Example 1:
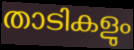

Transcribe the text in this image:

താടികളും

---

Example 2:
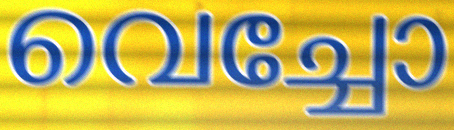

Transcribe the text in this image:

വെച്ചോ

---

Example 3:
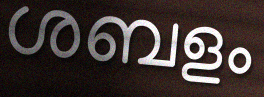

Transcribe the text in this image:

ശബളം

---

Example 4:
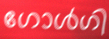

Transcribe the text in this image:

ഗോൾഗി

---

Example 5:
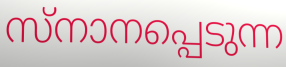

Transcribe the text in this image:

സ്നാനപ്പെടുന്ന